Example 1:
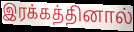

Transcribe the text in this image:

இரக்கத்தினால்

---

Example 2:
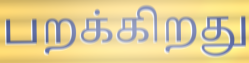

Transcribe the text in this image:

பறக்கிறது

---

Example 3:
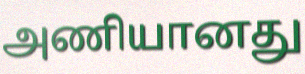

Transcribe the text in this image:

அணியானது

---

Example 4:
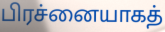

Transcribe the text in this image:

பிரச்னையாகத்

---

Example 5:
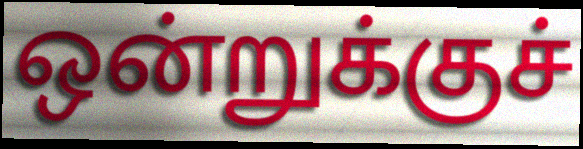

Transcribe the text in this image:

ஒன்றுக்குச்